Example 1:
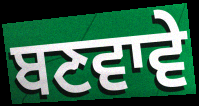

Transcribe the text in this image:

ਬਣਵਾਵੇ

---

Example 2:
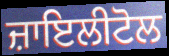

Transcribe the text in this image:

ਜ਼ਾਇਲੀਟੋਲ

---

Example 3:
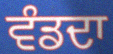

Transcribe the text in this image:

ਵੰਡਦਾ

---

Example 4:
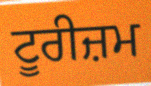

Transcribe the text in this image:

ਟੂਰੀਜ਼ਮ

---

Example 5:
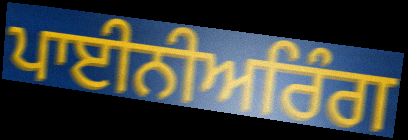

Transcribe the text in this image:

ਪਾਈਨੀਅਰਿੰਗ